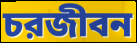
চরজীবন